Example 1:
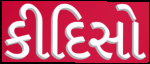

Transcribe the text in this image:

કીદિસો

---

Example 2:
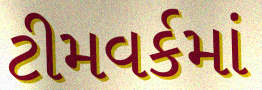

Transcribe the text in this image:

ટીમવર્કમાં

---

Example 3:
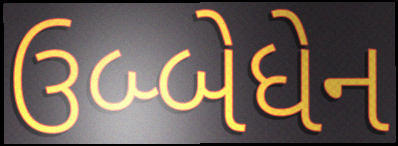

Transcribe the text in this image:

ઉબ્બેધેન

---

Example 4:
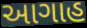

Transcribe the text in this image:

આગાહ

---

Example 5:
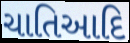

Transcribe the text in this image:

ચાતિઆદિ